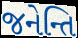
જનેન્તિ